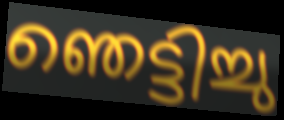
ഞെട്ടിച്ചു